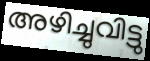
അഴിച്ചുവിട്ടു